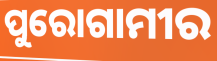
ପୁରୋଗାମୀର